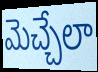
మెచ్చేలా